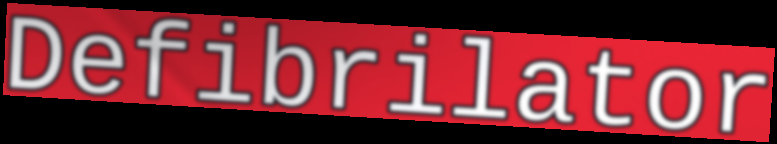
Defibrilator